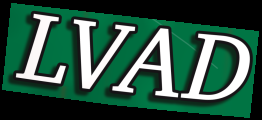
LVAD